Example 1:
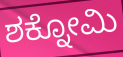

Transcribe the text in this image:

ಶಕ್ನೋಮಿ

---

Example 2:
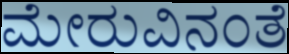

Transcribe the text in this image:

ಮೇರುವಿನಂತೆ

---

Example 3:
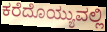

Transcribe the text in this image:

ಕರೆದೊಯ್ಯುವಲ್ಲಿ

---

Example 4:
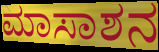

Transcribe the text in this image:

ಮಾಸಾಶನ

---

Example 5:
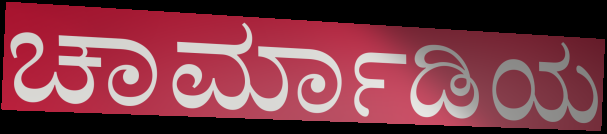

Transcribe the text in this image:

ಚಾರ್ಮಾಡಿಯ